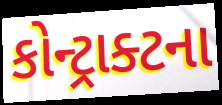
કોન્ટ્રાક્ટના